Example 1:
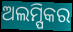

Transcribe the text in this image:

ଅଲମ୍ପିକର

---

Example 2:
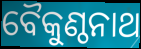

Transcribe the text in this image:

ବୈକୁଣ୍ଠନାଥ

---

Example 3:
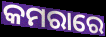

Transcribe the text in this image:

କମରାରେ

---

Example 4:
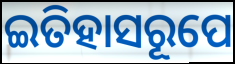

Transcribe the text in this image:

ଇତିହାସରୂପେ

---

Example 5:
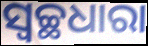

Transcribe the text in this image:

ସ୍ୱଚ୍ଛଧାରା